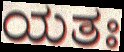
ಯತಃ